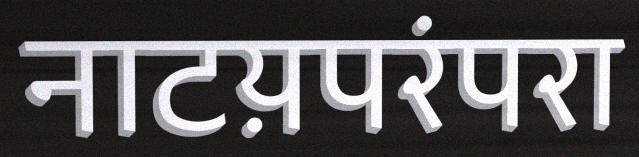
नाटय़परंपरा